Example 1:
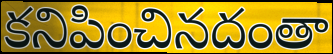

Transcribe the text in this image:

కనిపించినదంతా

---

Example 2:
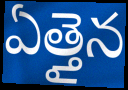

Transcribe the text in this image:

ఏత్తైన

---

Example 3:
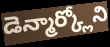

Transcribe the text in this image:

డెన్మార్క్లోని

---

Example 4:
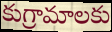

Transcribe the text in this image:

కుగ్రామాలకు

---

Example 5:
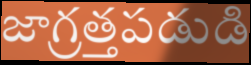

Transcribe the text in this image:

జాగ్రత్తపడుడి